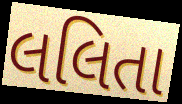
લલિતા